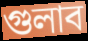
গুলাব